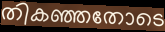
തികഞ്ഞതോടെ